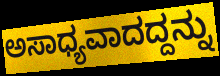
ಅಸಾಧ್ಯವಾದದ್ದನ್ನು